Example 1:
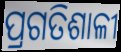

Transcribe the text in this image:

ପ୍ରଗତିଶାଳୀ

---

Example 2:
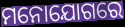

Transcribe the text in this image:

ମନୋଯୋଗରେ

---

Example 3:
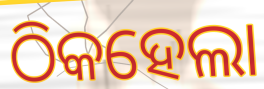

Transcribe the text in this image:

ଠିକହେଲା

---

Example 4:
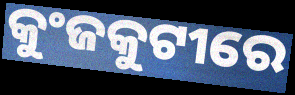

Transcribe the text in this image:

କୁଂଜକୁଟୀରେ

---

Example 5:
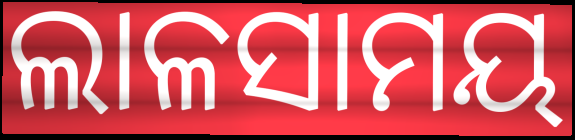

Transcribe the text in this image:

ଲାଳସାମୟ